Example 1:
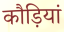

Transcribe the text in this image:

कौड़ियां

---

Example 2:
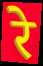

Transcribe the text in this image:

रे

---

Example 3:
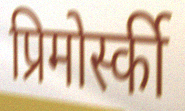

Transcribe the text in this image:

प्रिमोर्स्की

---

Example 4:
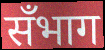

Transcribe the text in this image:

सँभाग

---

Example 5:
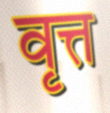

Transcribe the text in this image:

वृत्त